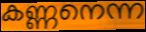
കണ്ണനെന്ന